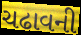
ચઢાવની